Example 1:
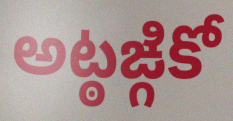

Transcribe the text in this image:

అట్ఠఙ్గికో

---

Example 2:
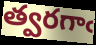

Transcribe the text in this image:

త్వరగాఁ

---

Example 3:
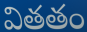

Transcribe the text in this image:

వితతం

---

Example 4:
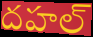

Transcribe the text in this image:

దహల్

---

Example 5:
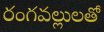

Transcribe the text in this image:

రంగవల్లులతో